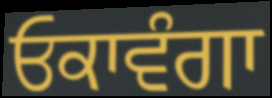
ਓਕਾਵੰਗਾ